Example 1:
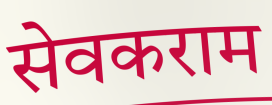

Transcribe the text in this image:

सेवकराम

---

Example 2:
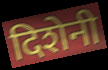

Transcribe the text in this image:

दिशेनी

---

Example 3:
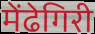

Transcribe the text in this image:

मेंढेगिरी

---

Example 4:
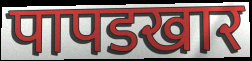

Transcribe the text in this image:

पापडखार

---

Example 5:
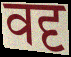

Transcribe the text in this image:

वदृ